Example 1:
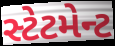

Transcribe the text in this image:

સ્ટેટમેન્ટ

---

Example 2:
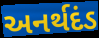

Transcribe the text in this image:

અનર્થદંડ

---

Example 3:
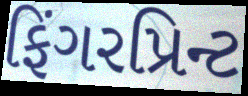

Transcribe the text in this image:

ફિંગરપ્રિન્ટ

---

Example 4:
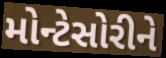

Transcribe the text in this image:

મોન્ટેસોરીને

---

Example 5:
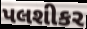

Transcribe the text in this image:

પલશીકર